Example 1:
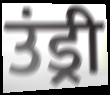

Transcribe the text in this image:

उंड्री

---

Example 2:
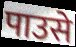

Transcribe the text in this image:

पाउसे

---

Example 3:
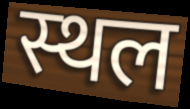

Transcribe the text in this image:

स्‍थल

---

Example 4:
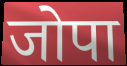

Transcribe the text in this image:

जोपा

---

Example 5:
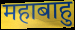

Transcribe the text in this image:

महाबाहु